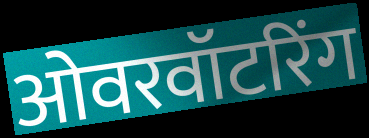
ओवरवॉटरिंग